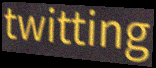
twitting